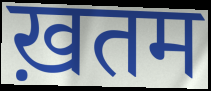
ख़तम